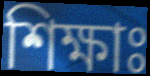
শিক্ষাঃ